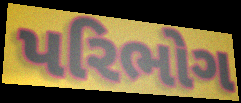
પરિભોગ